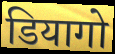
डियागो